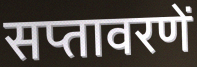
सप्तावरणें